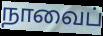
நாவைப்